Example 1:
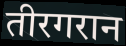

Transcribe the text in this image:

तीरगरान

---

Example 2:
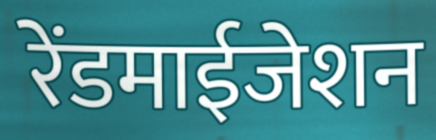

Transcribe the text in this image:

रेंडमाईजेशन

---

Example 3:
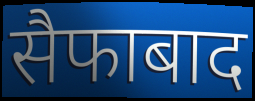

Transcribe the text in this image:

सैफाबाद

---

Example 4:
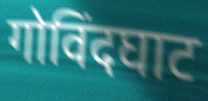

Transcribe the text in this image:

गोविंदघाट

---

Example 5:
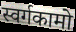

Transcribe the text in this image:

स्वर्गकामो